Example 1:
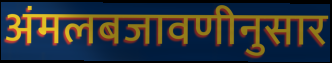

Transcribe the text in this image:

अंमलबजावणीनुसार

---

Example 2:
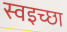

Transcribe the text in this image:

स्वइच्छा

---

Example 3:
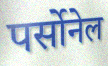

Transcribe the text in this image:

पर्सोनेल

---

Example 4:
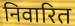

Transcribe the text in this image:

निवारित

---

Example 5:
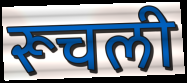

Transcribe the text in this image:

रूचली